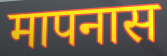
मापनास